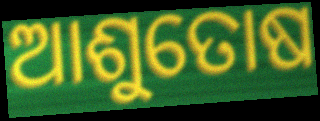
ଆଶୁତୋଷ